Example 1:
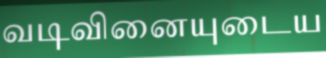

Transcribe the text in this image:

வடிவினையுடைய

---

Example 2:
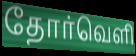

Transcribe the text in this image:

தோர்வெளி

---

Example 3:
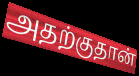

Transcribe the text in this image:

அதற்குதான்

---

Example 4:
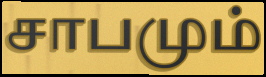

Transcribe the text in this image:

சாபமும்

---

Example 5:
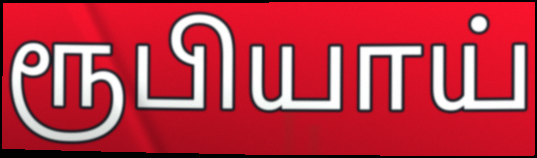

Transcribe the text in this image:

ரூபியாய்